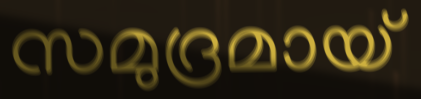
സമുദ്രമായ്